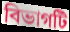
বিভাগটি